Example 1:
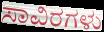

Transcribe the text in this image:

ಸಾವಿರಗಳು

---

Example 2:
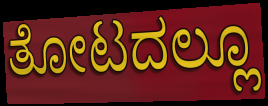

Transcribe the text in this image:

ತೋಟದಲ್ಲೂ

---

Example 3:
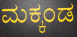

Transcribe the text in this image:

ಮಕ್ಕಂಡ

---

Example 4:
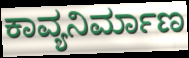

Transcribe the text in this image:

ಕಾವ್ಯನಿರ್ಮಾಣ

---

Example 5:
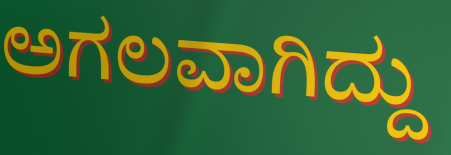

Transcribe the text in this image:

ಅಗಲವಾಗಿದ್ದು